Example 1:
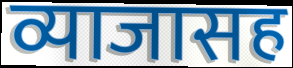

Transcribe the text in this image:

व्याजासह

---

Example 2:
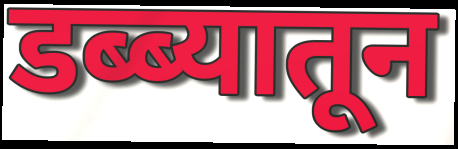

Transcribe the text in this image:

डब्ब्यातून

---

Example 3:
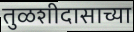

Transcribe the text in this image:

तुळशीदासाच्या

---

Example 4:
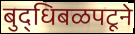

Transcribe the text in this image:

बुद्धिबळपटूने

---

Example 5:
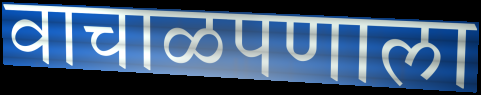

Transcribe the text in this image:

वाचाळपणाला